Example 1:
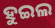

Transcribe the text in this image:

ହୁଇଲ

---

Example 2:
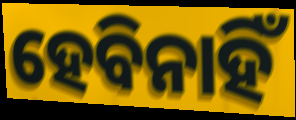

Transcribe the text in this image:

ହେବିନାହିଁ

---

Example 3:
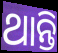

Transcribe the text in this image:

ଥାନ୍ତି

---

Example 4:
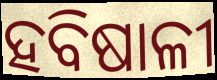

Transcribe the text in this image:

ହବିଷାଳୀ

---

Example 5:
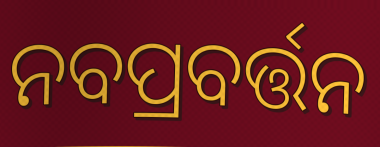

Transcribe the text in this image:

ନବପ୍ରବର୍ତ୍ତନ